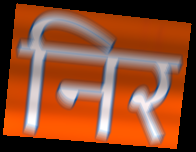
निर